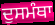
ਦੁਸਮੰਥਾ